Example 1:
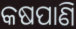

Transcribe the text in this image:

କଷପାଣି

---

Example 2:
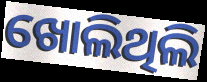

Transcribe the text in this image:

ଖୋଲିଥିଲି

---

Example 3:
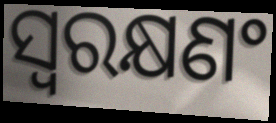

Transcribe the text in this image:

ସ୍ୱରକ୍ଷଣଂ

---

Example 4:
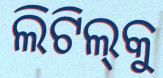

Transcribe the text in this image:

ଲିଟିଲ୍‌କୁ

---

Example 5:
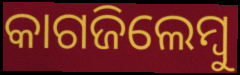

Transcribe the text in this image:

କାଗଜିଲେମ୍ବୁ